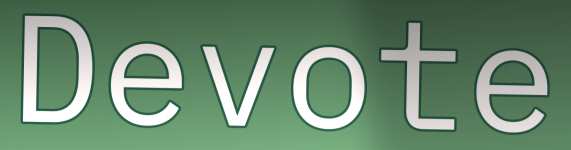
Devote